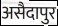
असैदापुर